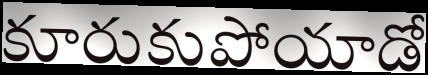
కూరుకుపోయాడో